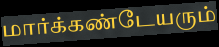
மார்க்கண்டேயரும்